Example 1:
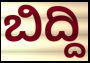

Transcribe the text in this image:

ಬಿದ್ದಿ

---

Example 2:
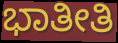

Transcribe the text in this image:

ಭಾತೀತಿ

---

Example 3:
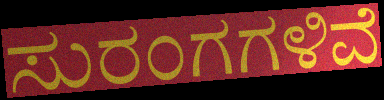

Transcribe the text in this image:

ಸುರಂಗಗಳಿವೆ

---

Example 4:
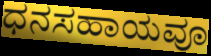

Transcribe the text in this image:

ಧನಸಹಾಯವೂ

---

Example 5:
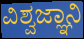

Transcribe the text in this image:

ವಿಶ್ವಜ್ಞಾನಿ